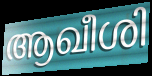
ആഖീശി